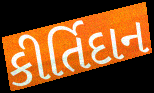
કીર્તિદાન